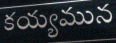
కయ్యమున